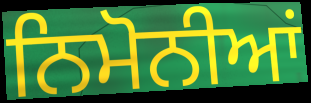
ਨਿਮੋਨੀਆਂ